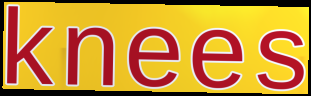
knees